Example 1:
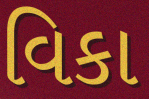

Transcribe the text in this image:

વિકા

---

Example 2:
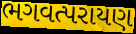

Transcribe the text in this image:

ભગવત્પરાયણ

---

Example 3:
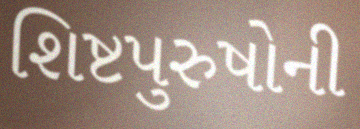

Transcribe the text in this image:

શિષ્ટપુરુષોની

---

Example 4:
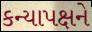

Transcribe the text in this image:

કન્યાપક્ષને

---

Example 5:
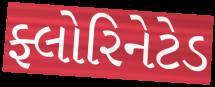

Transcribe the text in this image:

ફ્લોરિનેટેડ